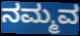
ನಮ್ಮವ